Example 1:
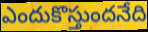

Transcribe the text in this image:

ఎందుకొస్తుందనేది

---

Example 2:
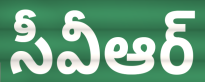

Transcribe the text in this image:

సీవీఆర్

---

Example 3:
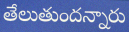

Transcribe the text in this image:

తేలుతుందన్నారు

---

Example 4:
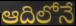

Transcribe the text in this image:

ఆదిలోనే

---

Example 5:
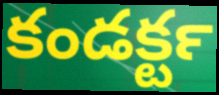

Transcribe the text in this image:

కండక్టర్‍